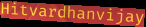
Hitvardhanvijay